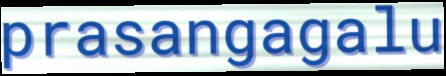
prasangagalu